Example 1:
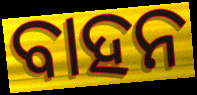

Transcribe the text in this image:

ବାହନ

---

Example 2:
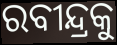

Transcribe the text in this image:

ରବୀନ୍ଦ୍ରକୁ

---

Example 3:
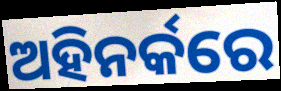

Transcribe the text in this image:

ଅହିନର୍କରେ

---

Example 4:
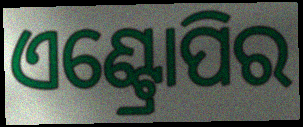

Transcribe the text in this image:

ଏଣ୍ଟ୍ରୋପିର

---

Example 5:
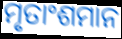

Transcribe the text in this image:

ମୃତାଂଶମାନ